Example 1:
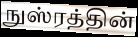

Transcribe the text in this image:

நுஸ்ரத்தின்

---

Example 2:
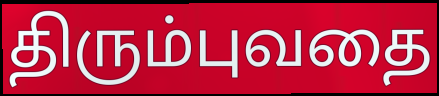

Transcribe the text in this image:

திரும்புவதை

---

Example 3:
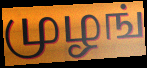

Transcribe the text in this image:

முழங்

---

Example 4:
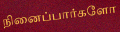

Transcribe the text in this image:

நினைப்பார்களோ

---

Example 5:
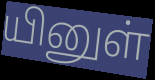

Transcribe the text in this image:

யினுள்